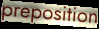
preposition